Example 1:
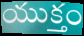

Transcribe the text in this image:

యుక్తం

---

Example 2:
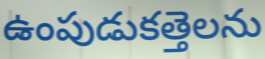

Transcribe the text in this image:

ఉంపుడుకత్తెలను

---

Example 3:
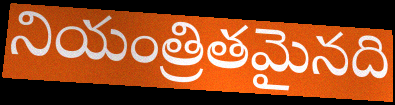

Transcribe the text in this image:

నియంత్రితమైనది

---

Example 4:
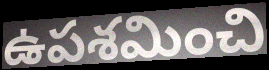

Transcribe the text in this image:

ఉపశమించి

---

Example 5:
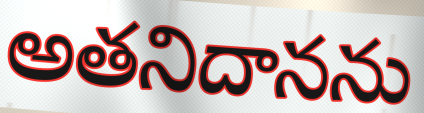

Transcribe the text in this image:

అతనిదానను